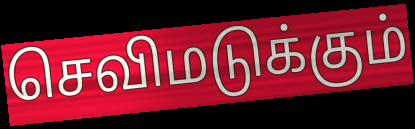
செவிமடுக்கும்